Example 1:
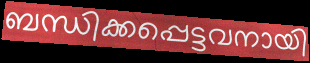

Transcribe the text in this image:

ബന്ധിക്കപ്പെട്ടവനായി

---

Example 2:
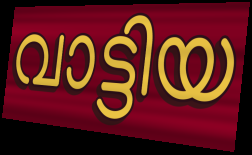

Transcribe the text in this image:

വാട്ടിയ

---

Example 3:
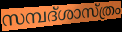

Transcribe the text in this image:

സമ്പദ്ശാസ്ത്രം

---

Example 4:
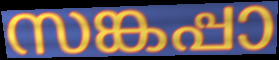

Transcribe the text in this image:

സങ്കപ്പാ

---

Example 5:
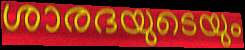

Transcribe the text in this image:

ശാരദയുടെയും